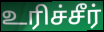
உரிச்சீர்